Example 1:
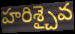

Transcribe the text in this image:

హరిశ్చైవ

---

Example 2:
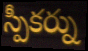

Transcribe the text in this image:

స్పీకర్ను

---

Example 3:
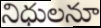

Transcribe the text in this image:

నిధులనూ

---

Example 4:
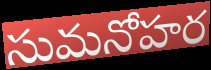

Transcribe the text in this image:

సుమనోహర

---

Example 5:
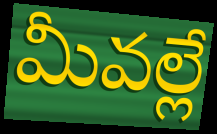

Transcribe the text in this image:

మీవల్లే